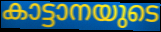
കാട്ടാനയുടെ